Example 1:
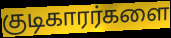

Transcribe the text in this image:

குடிகாரர்களை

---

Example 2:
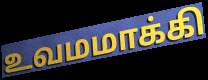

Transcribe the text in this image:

உவமமாக்கி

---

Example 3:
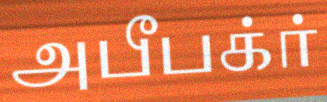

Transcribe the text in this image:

அபீபக்ர்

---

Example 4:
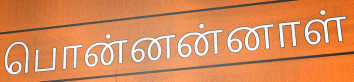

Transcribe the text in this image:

பொன்னன்னாள்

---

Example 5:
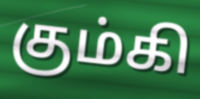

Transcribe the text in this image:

கும்கி